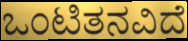
ಒಂಟಿತನವಿದೆ